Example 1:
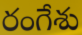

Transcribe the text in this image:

రంగేశు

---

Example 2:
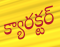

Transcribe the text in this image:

క్యారక్టర్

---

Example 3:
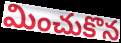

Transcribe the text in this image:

మించుకొన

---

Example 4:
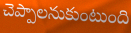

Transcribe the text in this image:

చెప్పాలనుకుంటుంది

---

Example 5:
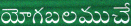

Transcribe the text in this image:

యోగబలముచే